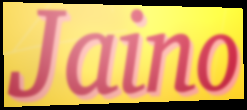
Jaino